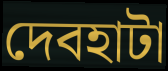
দেবহাটা